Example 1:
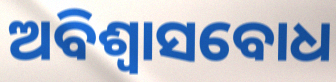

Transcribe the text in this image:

ଅବିଶ୍ୱାସବୋଧ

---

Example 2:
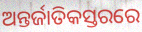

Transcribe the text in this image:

ଅନ୍ତର୍ଜାତିକସ୍ତରରେ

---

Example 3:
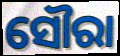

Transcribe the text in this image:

ସୌରା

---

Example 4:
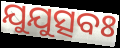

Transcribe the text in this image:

ଯୁଯୁତ୍ସବଃ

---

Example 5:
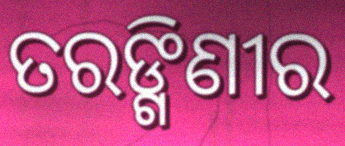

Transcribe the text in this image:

ତରଙ୍ଗିଣୀର